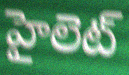
హైలెట్